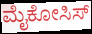
ಮೈಕೋಸಿಸ್